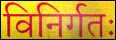
विनिर्गतः